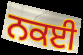
ਨਕਈ